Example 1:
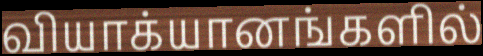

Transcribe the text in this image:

வியாக்யானங்களில்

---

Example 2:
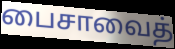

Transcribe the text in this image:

பைசாவைத்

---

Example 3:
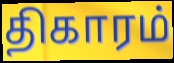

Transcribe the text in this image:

திகாரம்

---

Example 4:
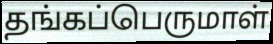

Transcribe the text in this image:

தங்கப்பெருமாள்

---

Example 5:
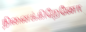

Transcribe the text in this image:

நினைக்கிறேனோ